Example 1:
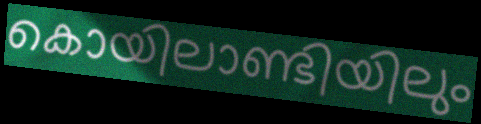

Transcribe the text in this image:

കൊയിലാണ്ടിയിലും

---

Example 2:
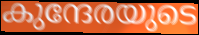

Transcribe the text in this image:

കുന്ദേരയുടെ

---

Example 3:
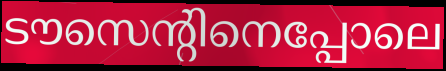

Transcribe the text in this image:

ടൗസെന്റിനെപ്പോലെ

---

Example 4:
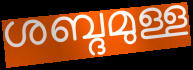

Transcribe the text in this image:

ശബ്ദമുള്ള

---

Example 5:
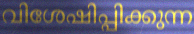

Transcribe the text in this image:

വിശേഷിപ്പിക്കുന്ന